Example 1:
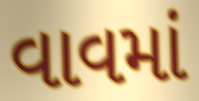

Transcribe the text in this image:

વાવમાં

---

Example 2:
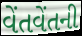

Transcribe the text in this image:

વેંતવેંતની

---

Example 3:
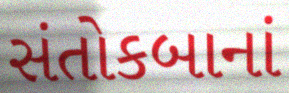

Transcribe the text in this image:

સંતોકબાનાં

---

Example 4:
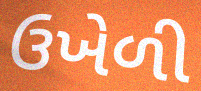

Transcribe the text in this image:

ઉખેળી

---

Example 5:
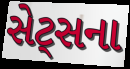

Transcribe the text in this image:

સેટ્સના